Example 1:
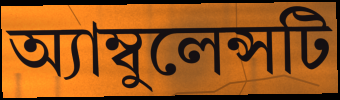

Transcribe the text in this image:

অ্যাম্বুলেন্সটি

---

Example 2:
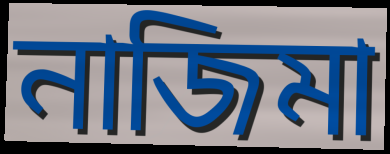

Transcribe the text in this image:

নাজিমা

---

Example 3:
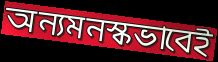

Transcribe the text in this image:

অন্যমনস্কভাবেই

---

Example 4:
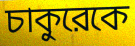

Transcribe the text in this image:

চাকুরেকে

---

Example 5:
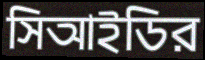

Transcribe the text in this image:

সিআইডির